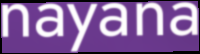
nayana